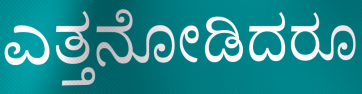
ಎತ್ತನೋಡಿದರೂ